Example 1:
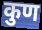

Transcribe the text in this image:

कुण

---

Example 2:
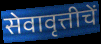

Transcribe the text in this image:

सेवावृत्तीचें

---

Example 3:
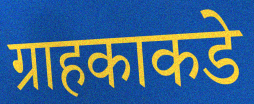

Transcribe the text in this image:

ग्राहकाकडे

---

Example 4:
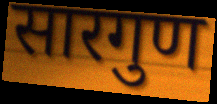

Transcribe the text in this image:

सारगुण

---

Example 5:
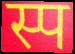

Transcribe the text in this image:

स्प